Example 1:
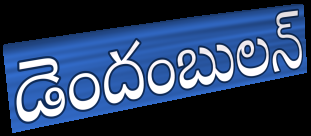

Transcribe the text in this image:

డెందంబులన్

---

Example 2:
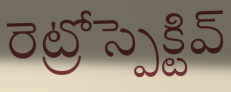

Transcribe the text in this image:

రెట్రోస్పెక్టివ్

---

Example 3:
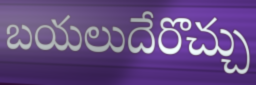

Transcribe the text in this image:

బయలుదేరొచ్చు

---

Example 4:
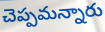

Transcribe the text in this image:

చెప్పమన్నారు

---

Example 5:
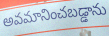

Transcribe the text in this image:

అవమానించబడ్డాను